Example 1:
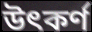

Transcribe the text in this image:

উৎকর্ণ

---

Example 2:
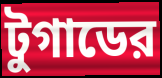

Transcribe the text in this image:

টুগাডের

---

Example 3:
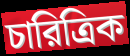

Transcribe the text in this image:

চারিত্রিক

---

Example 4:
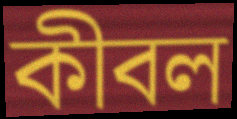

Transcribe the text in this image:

কীবল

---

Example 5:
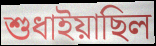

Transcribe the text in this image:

শুধাইয়াছিল